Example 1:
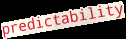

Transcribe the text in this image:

predictability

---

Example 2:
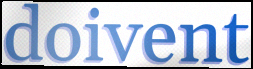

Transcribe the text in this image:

doivent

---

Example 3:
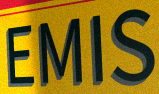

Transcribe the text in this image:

EMIS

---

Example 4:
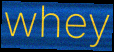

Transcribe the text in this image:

whey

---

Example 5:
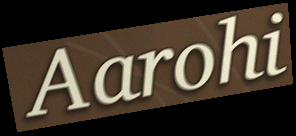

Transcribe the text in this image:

Aarohi